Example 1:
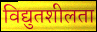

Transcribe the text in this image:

विद्युतशीलता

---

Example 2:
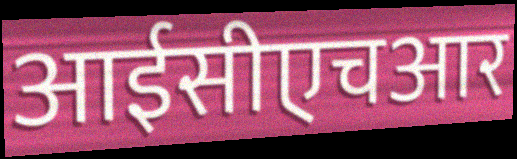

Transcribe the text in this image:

आईसीएचआर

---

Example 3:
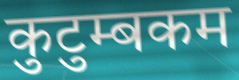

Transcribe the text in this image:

कुटुम्बकम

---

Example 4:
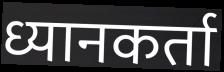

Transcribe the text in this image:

ध्यानकर्ता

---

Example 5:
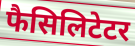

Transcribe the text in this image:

फैसिलिटेटर